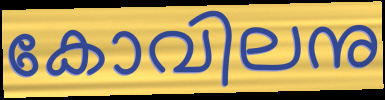
കോവിലനു